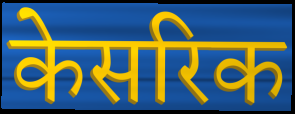
केसरिक